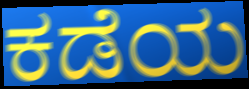
ಕಡೆಯ